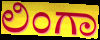
ಲಿಂಗಾ